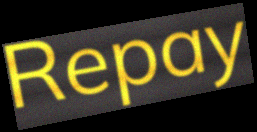
Repay